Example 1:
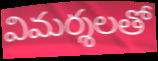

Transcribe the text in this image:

విమర్శలతో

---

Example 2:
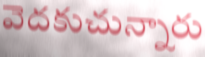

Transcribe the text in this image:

వెదకుచున్నారు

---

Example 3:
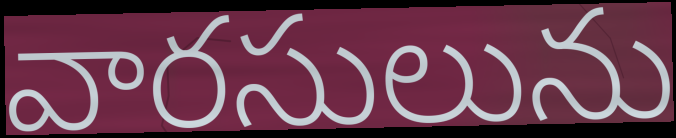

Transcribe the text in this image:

వారసులును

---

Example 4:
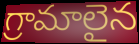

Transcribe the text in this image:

గ్రామాలైన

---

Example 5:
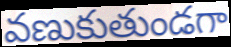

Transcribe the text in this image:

వణుకుతుండగా